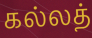
கல்லத்